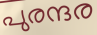
പുരന്ദര